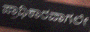
ಪ್ರಾಧಿಕಾರವಾಗಲೀ